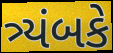
ત્ર્યંબકે